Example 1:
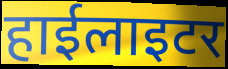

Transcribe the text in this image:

हाईलाइटर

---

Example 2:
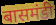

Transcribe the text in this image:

बासमंडी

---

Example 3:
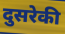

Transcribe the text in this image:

दुसरेकी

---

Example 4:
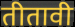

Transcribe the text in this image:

तीतावी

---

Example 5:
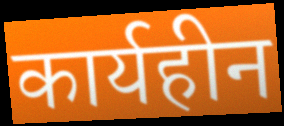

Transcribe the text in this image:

कार्यहीन